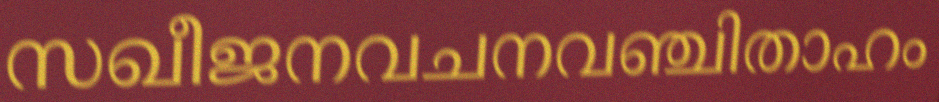
സഖീജനവചനവഞ്ചിതാഹം